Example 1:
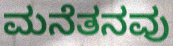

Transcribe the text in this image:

ಮನೆತನವು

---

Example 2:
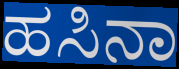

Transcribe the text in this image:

ಹಸಿನಾ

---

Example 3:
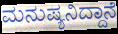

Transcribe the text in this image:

ಮನುಷ್ಯನಿದ್ದಾನೆ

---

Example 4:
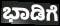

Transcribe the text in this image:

ಭಾಡಿಗೆ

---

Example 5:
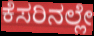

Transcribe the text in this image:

ಕೆಸರಿನಲ್ಲೇ